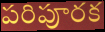
పరిపూరక